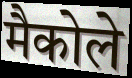
मैकोले